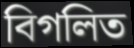
বিগলিত